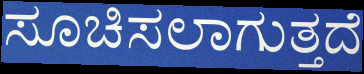
ಸೂಚಿಸಲಾಗುತ್ತದೆ